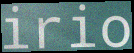
irio